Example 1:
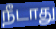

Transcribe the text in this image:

நீடாது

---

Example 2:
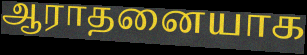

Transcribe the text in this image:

ஆராதனையாக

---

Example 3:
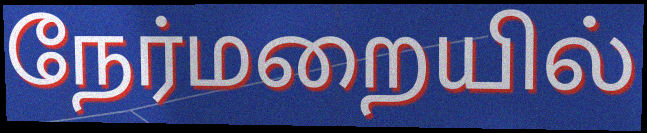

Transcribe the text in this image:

நேர்மறையில்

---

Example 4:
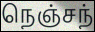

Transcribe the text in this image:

நெஞ்சந்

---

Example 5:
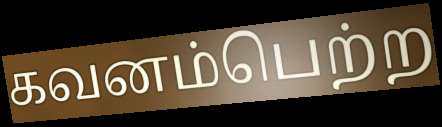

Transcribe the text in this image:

கவனம்பெற்ற